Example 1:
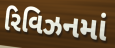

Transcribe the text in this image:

રિવિઝનમાં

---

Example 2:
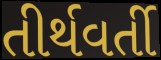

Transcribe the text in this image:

તીર્થવર્તી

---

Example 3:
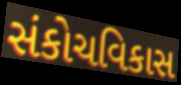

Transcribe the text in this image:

સંકોચવિકાસ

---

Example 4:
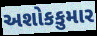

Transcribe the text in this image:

અશોકકુમાર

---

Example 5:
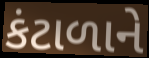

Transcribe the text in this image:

કંટાળાને